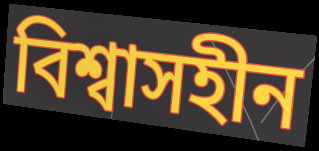
বিশ্বাসহীন